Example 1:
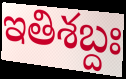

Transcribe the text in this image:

ఇతిశబ్దః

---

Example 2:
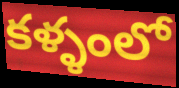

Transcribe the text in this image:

కళ్ళంలో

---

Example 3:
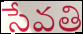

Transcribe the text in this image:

సేవతి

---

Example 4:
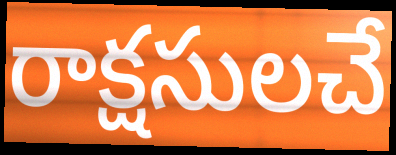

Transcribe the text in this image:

రాక్షసులచే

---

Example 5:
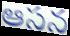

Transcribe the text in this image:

ఆసన